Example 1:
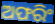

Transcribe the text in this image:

ଅଫରିଂ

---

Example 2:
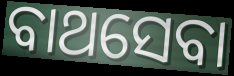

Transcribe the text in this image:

ବାଥସେବା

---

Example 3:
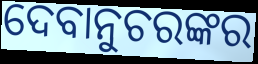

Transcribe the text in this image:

ଦେବାନୁଚରଙ୍କର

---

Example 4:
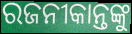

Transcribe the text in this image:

ରଜନୀକାନ୍ତଙ୍କୁ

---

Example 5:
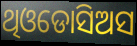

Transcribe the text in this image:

ଥିଓଡୋସିଅସ